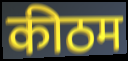
कीठम